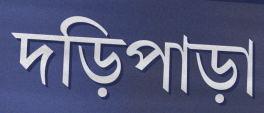
দড়িপাড়া